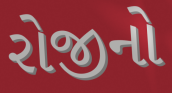
રોજીનો